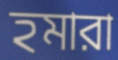
হমারা